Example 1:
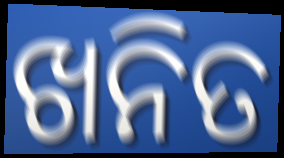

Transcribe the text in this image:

ଖନିତ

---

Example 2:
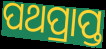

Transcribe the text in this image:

ପଥପ୍ରାପ୍ତ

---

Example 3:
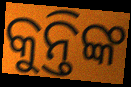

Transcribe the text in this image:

କୁନ୍ତିଙ୍କ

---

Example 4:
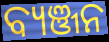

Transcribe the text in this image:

ବ୍ୟଞ୍ଜନ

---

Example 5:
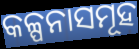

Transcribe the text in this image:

କଳ୍ପନାସମୂହ